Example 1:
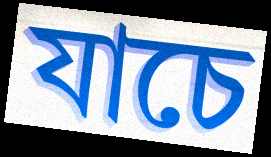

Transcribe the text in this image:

যাচে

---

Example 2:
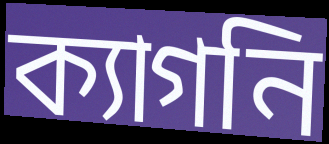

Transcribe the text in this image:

ক্যাগনি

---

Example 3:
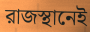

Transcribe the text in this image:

রাজস্থানেই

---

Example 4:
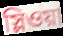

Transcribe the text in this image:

স্লিওয়া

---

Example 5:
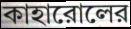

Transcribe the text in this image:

কাহারোলের